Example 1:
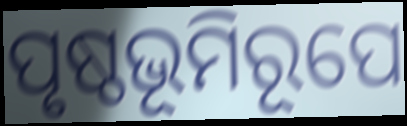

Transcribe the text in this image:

ପୃଷ୍ଠଭୂମିରୂପେ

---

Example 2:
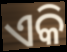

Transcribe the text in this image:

ଏକି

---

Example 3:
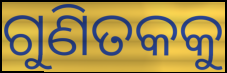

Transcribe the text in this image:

ଗୁଣିତକକୁ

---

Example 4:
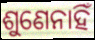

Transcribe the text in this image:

ଶୁଣେନାହିଁ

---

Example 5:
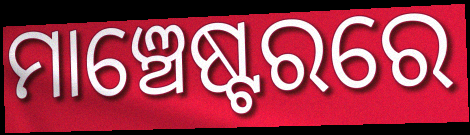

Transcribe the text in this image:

ମାଞ୍ଚେଷ୍ଟରରେ